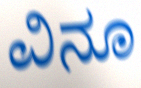
ವಿನೂ